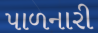
પાળનારી